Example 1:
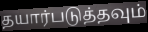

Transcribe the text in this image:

தயார்படுத்தவும்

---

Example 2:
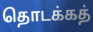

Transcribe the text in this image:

தொடக்கத்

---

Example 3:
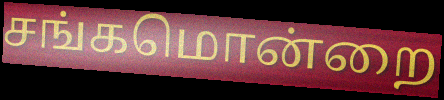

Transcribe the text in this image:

சங்கமொன்றை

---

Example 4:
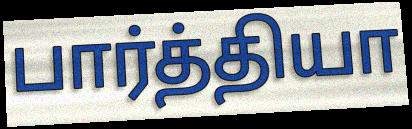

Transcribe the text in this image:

பார்த்தியா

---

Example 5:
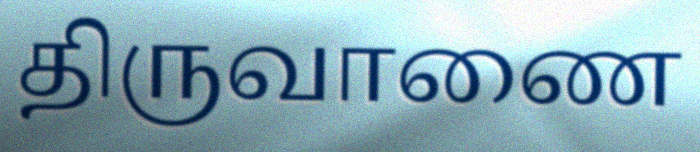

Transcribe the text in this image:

திருவாணை